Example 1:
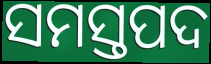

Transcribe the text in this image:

ସମସ୍ତପଦ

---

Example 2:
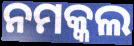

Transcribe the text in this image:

ନମକ୍କଲ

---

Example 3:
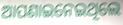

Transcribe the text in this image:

ଆପଣାଇନେଇଥିଲେ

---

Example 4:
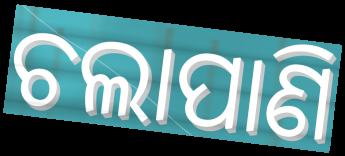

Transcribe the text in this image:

ଚଲାପାଣି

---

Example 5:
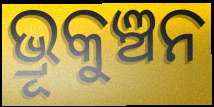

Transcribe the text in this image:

ଭ୍ରୂକୁଞ୍ଚନ